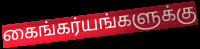
கைங்கர்யங்களுக்கு